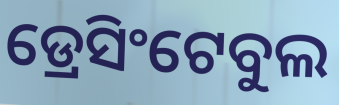
ଡ୍ରେସିଂଟେବୁଲ